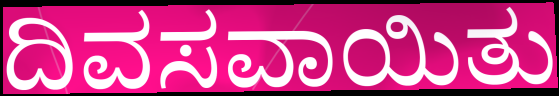
ದಿವಸವಾಯಿತು